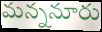
మన్ననూరు